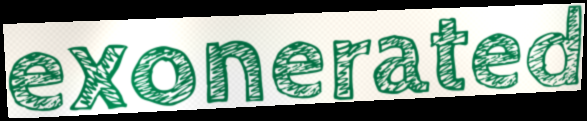
exonerated